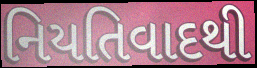
નિયતિવાદથી